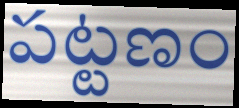
పట్టణం